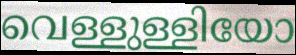
വെള്ളുള്ളിയോ